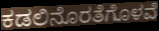
ಕಡಲಿನೊರತೆಗೊಳವೆ